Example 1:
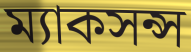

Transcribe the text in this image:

ম্যাকসন্স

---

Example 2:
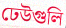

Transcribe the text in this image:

ঢেউগুলি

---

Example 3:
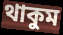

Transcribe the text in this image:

থাকুম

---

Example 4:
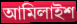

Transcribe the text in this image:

আমিলাইশ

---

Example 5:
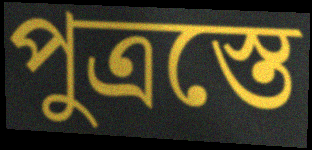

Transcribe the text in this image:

পুত্রস্তে